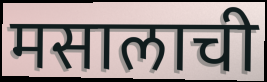
मसालाची